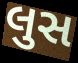
લુસ